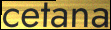
cetana